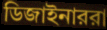
ডিজাইনাররা